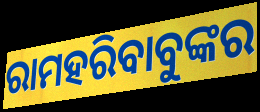
ରାମହରିବାବୁଙ୍କର